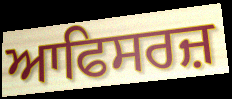
ਆਫਿਸਰਜ਼